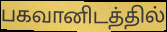
பகவானிடத்தில்